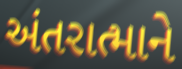
અંતરાત્માને